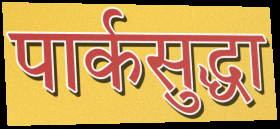
पार्कसुद्धा